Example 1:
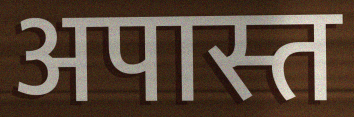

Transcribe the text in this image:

अपास्त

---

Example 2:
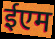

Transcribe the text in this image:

ईएम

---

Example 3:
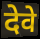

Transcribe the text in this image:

देवे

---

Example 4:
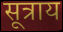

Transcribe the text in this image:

सूत्राय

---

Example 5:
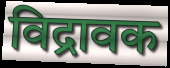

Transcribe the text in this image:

विद्रावक